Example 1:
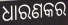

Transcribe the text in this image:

ଧାରଣକର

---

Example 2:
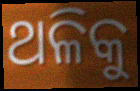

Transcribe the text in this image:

ଥଳିକୁ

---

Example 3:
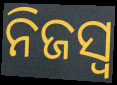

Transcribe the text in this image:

ନିଜସ୍ୱ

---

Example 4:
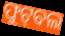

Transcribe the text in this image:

ଫୁଟ୍‌ବଲ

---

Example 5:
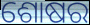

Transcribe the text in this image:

ଶୋଷର